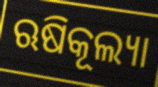
ଋଷିକୂଲ୍ୟା